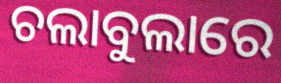
ଚଲାବୁଲାରେ